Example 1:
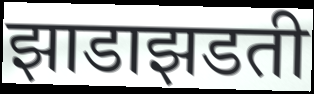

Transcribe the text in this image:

झाडाझडती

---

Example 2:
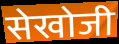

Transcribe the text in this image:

सेखोजी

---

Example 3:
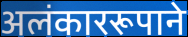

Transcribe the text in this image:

अलंकाररूपाने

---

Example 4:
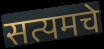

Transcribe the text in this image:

सत्यमचे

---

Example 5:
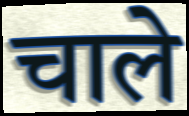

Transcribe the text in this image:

चाले